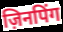
ज़िनपिंग